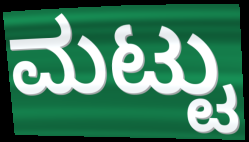
ಮಟ್ಟು